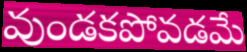
వుండకపోవడమే